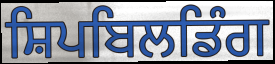
ਸ਼ਿਪਬਿਲਡਿੰਗ